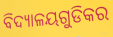
ବିଦ୍ୟାଳୟଗୁଡିକର